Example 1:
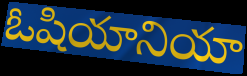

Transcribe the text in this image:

ఓషియానియా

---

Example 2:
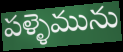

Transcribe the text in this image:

పళ్ళెమును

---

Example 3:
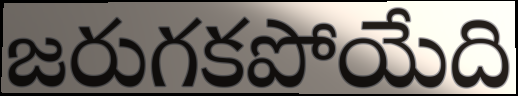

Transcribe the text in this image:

జరుగకపోయేది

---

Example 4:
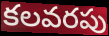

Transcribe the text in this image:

కలవరపు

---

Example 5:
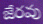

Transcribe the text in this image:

జేరవు